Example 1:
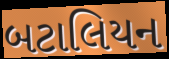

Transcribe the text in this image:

બટાલિયન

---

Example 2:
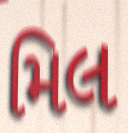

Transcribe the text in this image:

મિલ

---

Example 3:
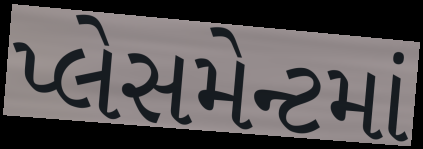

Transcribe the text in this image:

પ્લેસમેન્ટમાં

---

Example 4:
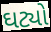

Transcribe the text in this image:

ઘટ્યો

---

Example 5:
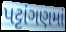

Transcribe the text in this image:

પટ્ટાંગણમાં